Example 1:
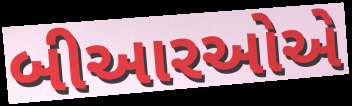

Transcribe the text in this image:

બીઆરઓએ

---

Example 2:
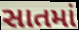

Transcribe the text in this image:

સાતમાં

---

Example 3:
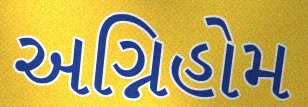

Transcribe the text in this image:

અગ્નિહોમ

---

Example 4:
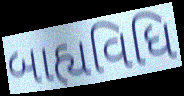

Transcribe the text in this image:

બાહ્યવિધિ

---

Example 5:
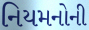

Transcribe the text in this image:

નિયમનોની